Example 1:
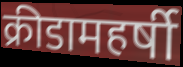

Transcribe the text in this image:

क्रीडामहर्षी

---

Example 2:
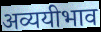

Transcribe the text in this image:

अव्ययीभाव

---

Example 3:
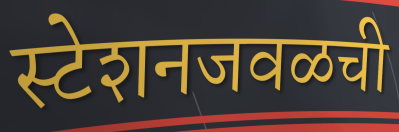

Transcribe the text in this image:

स्टेशनजवळची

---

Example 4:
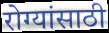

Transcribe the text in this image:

रोग्यांसाठी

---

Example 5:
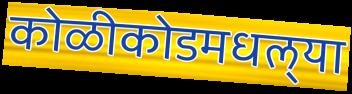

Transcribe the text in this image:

कोळीकोडमधल्या